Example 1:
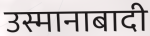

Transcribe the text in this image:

उस्मानाबादी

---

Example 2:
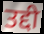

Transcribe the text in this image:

उद्दी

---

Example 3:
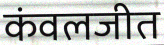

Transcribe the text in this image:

कंवलजीत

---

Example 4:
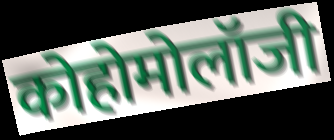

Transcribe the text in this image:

कोहोमोलॉजी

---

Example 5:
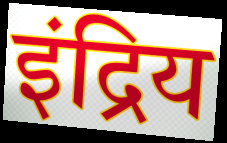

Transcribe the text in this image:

इंद्रिय